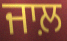
ਜਾਲ਼